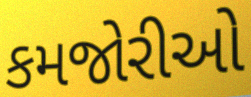
કમજોરીઓ